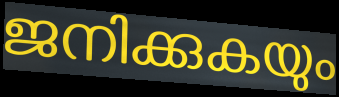
ജനിക്കുകയും